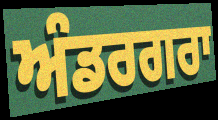
ਅੰਡਰਗਰਾ